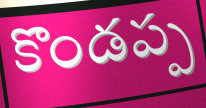
కొండప్ప